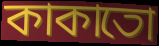
কাকাতো